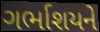
ગર્ભાશયને